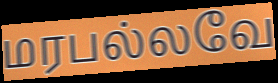
மரபல்லவே